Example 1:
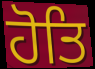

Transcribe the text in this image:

ਹੋਤਿ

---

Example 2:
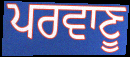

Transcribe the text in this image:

ਪਰਵਾਣੂ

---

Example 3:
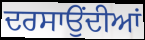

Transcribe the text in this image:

ਦਰਸਾਉਂਦੀਆਂ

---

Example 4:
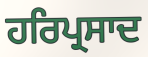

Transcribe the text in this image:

ਹਰਿਪ੍ਰਸਾਦ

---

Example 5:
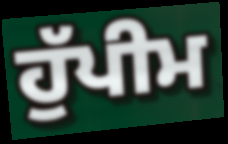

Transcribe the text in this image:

ਹੁੱਪੀਮ